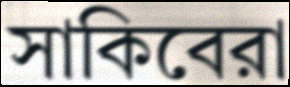
সাকিবেরা